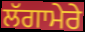
ਲੱਗਾਮੇਰੇ